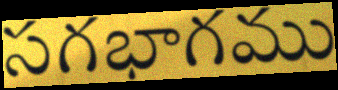
సగభాగము